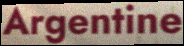
Argentine